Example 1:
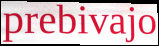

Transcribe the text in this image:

prebivajo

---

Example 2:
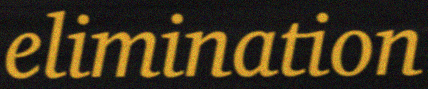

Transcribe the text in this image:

elimination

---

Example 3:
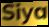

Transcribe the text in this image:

Siya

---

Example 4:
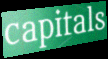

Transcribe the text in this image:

capitals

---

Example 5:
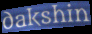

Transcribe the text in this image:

dakshin